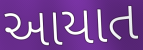
આયાત